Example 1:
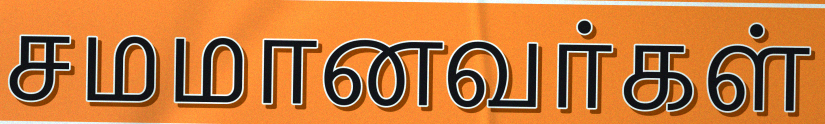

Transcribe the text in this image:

சமமானவர்கள்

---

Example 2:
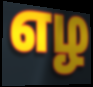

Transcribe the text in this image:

எழ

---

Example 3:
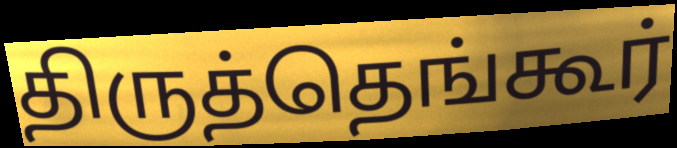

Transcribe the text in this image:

திருத்தெங்கூர்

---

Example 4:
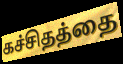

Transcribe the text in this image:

கச்சிதத்தை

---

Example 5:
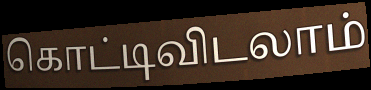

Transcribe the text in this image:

கொட்டிவிடலாம்